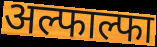
अल्फाल्फा